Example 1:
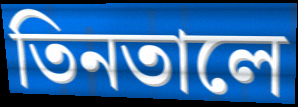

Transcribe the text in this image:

তিনতালে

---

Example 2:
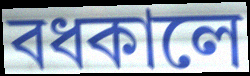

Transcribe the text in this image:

বধকালে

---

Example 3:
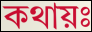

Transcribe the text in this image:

কথায়ঃ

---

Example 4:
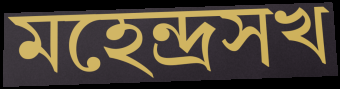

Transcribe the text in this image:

মহেন্দ্রসখ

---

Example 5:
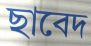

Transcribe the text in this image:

ছাবেদ